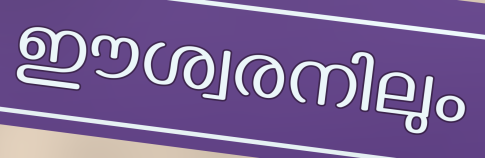
ഈശ്വരനിലും